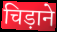
चिड़ाने